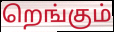
றெங்கும்